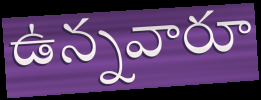
ఉన్నవారూ